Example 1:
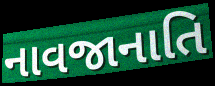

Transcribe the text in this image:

નાવજાનાતિ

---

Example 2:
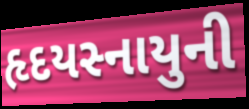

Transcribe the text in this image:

હૃદયસ્નાયુની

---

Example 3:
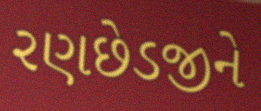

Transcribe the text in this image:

રણછેડજીને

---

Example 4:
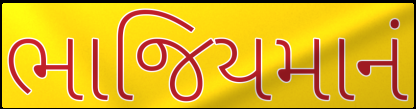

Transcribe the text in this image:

ભાજિયમાનં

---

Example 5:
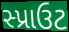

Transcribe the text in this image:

સ્પ્રાઉટ